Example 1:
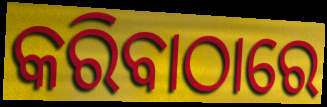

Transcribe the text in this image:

କରିବାଠାରେ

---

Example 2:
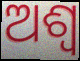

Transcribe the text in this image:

ଅଶ୍ବ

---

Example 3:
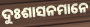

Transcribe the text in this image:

ଦୁଃଶାସନମାନେ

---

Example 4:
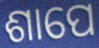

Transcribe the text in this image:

ଶାପେ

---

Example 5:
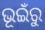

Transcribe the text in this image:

ଭୂଇଁରୁ